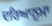
ਦਰਿਆਨੁਮਾ